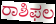
ರಾಶಿಫಲ